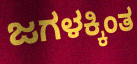
ಜಗಳಕ್ಕಿಂತ